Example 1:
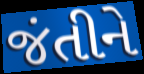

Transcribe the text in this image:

જંતીને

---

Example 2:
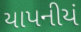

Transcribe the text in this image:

યાપનીયં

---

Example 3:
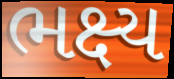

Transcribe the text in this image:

ભક્ષ્ય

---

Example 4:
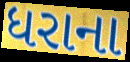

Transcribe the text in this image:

ધરાના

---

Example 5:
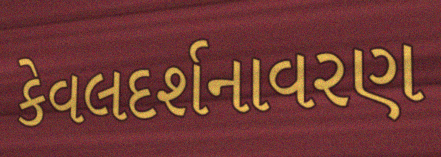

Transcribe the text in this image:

કેવલદર્શનાવરણ